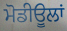
ਮੋਡੀਊਲਾਂ